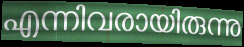
എന്നിവരായിരുന്നു